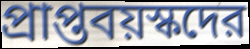
প্রাপ্তবয়স্কদের